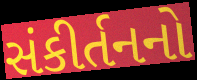
સંકીર્તનનો